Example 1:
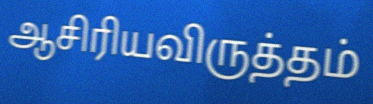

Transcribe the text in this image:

ஆசிரியவிருத்தம்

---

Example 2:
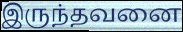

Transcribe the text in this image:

இருந்தவனை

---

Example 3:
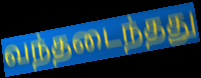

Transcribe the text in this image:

வந்தடைந்தது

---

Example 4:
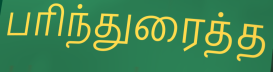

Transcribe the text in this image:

பரிந்துரைத்த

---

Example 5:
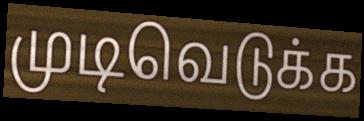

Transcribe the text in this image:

முடிவெடுக்க